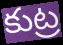
కుట్ర